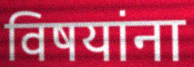
विषयांना